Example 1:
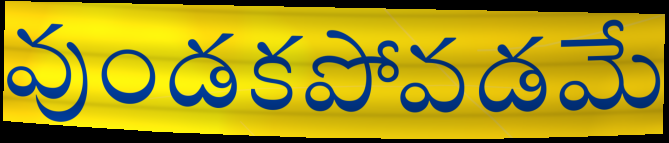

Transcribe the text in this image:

వుండకపోవడమే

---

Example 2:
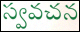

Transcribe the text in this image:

స్వవచన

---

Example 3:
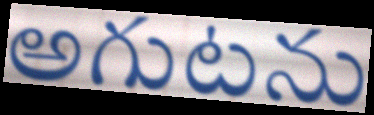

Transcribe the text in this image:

అగుటను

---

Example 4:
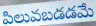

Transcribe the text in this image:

పిలువబడడమే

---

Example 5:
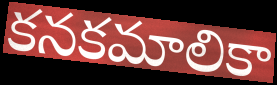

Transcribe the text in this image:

కనకమాలికా